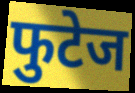
फुटेज